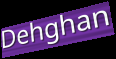
Dehghan